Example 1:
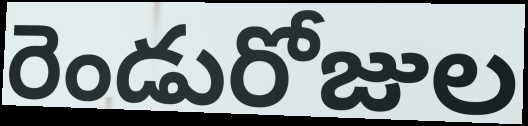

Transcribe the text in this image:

రెండురోజుల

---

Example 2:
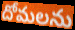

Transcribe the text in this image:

దోమలను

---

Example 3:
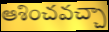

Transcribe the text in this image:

ఆశించవచ్చా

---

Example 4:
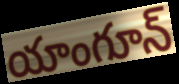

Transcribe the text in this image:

యాంగూన్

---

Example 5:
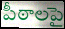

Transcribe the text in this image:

పీఠాలపై